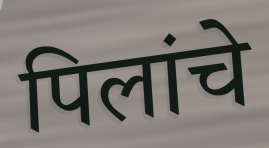
पिलांचे